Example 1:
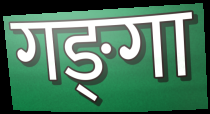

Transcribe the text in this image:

गङ्‍गा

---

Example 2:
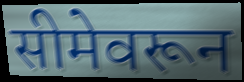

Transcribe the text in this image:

सीमेवरून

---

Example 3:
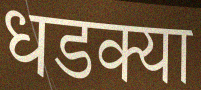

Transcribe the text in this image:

धडक्या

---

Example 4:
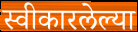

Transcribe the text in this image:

स्वीकारलेल्या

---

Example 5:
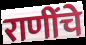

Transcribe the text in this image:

राणींचे